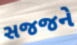
સજજને